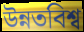
উন্নতবিশ্ব